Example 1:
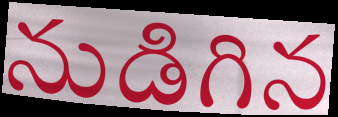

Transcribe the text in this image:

నుడిగిన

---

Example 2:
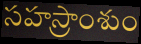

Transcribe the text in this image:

సహస్రాంశుం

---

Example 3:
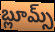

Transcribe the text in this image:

బ్లూమ్స్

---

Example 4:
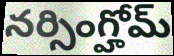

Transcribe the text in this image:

నర్సింగ్హోమ్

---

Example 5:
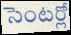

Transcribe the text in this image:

సెంటర్లో